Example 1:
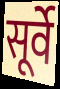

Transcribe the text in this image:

सूर्वे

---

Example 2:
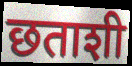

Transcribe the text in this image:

छताशी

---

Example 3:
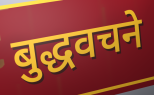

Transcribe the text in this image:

बुद्धवचने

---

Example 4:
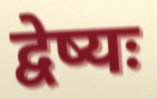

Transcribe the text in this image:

द्वेष्यः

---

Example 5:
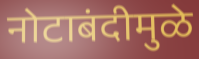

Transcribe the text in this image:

नोटाबंदीमुळे